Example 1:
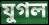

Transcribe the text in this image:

যুগল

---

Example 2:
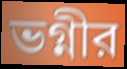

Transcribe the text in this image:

ভগ্নীর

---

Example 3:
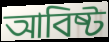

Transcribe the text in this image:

আবিষ্ট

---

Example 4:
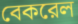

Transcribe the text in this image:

বেকরেল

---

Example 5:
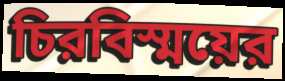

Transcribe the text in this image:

চিরবিস্ময়ের